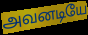
அவனடியே